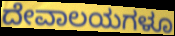
ದೇವಾಲಯಗಳೂ